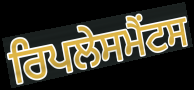
ਰਿਪਲੇਸਮੈਂਟਸ